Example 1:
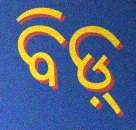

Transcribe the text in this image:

ବିଡ଼୍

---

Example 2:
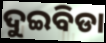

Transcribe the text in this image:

ଦୁଇବିଡା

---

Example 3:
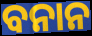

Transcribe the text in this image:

ବନାନ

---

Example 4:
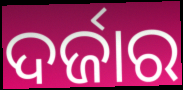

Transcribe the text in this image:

ଦର୍ଜାର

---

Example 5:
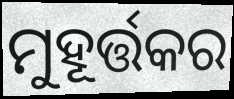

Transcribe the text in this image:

ମୁହୂର୍ତ୍ତକର